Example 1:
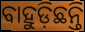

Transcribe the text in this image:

ବାହୁଡ଼ିଛନ୍ତି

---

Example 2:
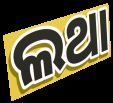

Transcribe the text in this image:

ଲଥା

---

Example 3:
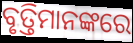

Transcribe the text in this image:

ବୃତ୍ତିମାନଙ୍କରେ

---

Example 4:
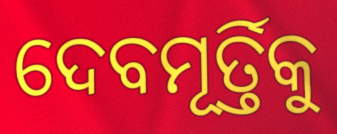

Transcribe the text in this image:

ଦେବମୂର୍ତ୍ତିକୁ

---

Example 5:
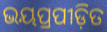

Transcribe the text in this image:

ଭୟପ୍ରପୀଡ଼ିତ